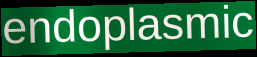
endoplasmic